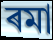
ৰমা